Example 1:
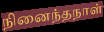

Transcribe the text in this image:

நினைந்தநாள்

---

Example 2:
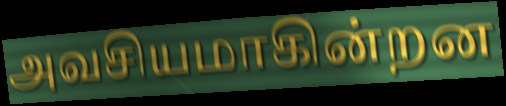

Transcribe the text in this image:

அவசியமாகின்றன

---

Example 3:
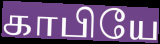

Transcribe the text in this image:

காபியே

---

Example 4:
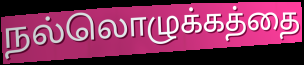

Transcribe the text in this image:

நல்லொழுக்கத்தை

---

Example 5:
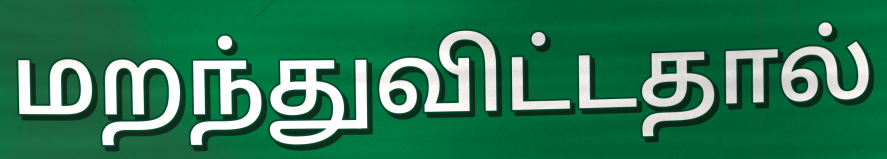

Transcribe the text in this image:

மறந்துவிட்டதால்